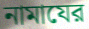
নামাযের